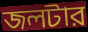
জলটার